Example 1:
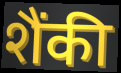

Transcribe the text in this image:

शैंकी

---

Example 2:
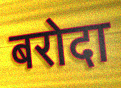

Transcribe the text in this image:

बरोदा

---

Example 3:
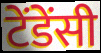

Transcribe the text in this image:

टेंडेंसी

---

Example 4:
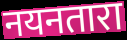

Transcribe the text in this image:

नयनतारा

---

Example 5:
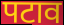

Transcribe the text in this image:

पटाव